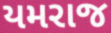
યમરાજ